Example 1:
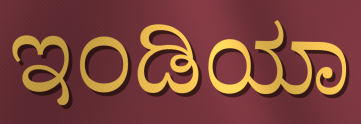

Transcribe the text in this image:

ಇಂಡಿಯಾ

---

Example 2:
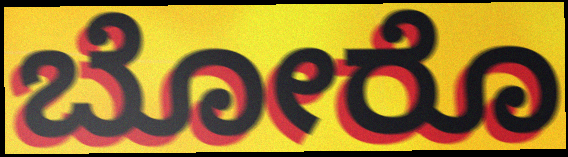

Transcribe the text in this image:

ಬೋರೊ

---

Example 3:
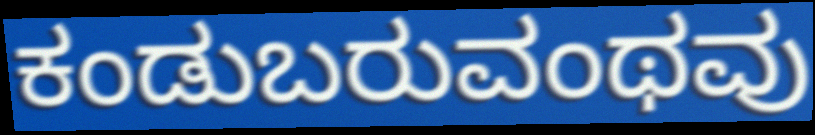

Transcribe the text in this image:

ಕಂಡುಬರುವಂಥವು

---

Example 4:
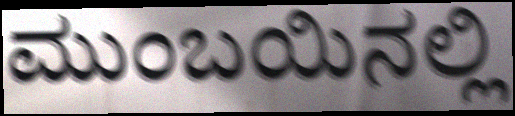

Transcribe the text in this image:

ಮುಂಬಯಿನಲ್ಲಿ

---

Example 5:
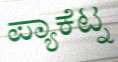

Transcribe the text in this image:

ಪ್ಯಾಕೆಟ್ನ